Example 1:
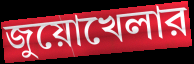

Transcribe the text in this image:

জুয়োখেলার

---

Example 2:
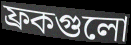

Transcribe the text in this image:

ফ্রকগুলো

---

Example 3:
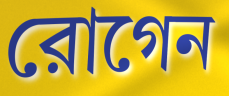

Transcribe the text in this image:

রোগেন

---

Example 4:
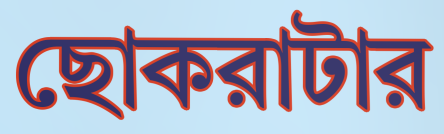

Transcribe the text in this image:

ছোকরাটার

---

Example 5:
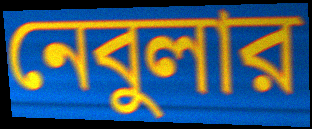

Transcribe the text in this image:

নেবুলার